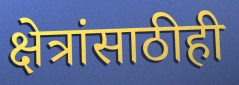
क्षेत्रांसाठीही